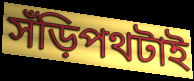
সঁড়িপথটাই